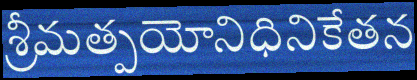
శ్రీమత్పయోనిధినికేతన